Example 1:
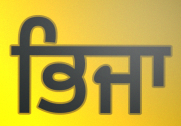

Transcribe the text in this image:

ਭਿਜਾ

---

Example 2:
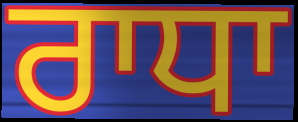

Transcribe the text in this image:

ਰਾਧਾ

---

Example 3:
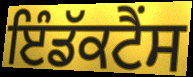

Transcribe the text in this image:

ਇੰਡੱਕਟੈਂਸ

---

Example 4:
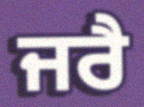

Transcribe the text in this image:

ਜਰੈ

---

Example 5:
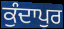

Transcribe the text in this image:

ਕੁੰਦਾਪੁਰ